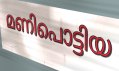
മണിപൊട്ടിയ